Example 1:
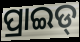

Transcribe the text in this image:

ପ୍ରାଇଡ୍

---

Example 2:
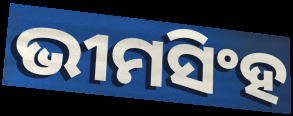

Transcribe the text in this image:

ଭୀମସିଂହ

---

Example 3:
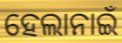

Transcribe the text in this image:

ହେଲାନାଇଁ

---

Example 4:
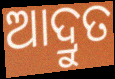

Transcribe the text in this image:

ଆଦ୍ରୁତ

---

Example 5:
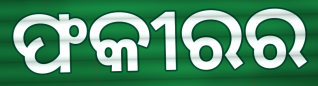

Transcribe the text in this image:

ଫକୀରର